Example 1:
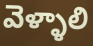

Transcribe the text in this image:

వెళ్ళాలి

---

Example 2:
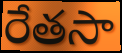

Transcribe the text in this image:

రేతసా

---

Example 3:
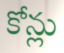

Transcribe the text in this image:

కోన్లు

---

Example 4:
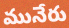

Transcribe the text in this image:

మునేరు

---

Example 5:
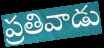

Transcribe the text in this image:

ప్రతివాడు